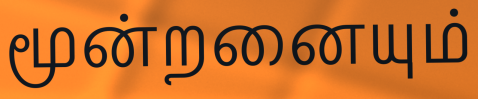
மூன்றனையும்